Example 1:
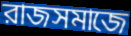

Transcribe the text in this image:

রাজসমাজে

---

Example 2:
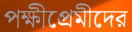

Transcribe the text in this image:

পক্ষীপ্রেমীদের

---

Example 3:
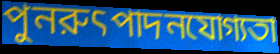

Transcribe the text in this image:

পুনরুৎপাদনযোগ্যতা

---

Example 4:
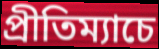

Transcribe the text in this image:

প্রীতিম্যাচে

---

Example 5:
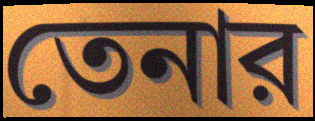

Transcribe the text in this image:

তেনার